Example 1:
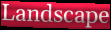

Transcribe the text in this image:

Landscape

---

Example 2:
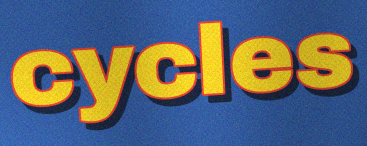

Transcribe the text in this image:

cycles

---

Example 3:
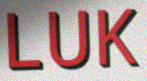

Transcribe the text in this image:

LUK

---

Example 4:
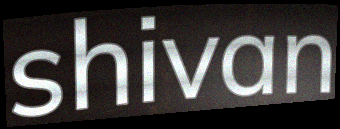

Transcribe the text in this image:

shivan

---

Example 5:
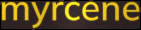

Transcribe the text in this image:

myrcene